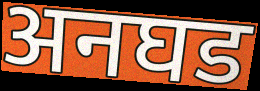
अनघड